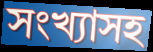
সংখ্যাসহ